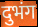
दुभंग